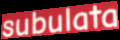
subulata